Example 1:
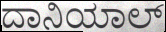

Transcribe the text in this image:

ದಾನಿಯಾಲ್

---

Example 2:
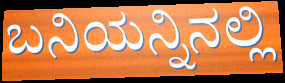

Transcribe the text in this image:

ಬನಿಯನ್ನಿನಲ್ಲಿ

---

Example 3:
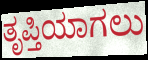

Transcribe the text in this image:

ತೃಪ್ತಿಯಾಗಲು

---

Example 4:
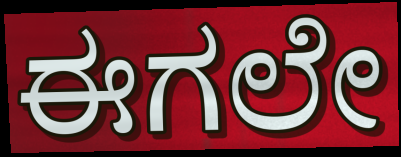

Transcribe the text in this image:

ಈಗಲೇ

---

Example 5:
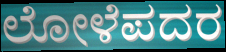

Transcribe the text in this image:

ಲೋಳೆಪದರ